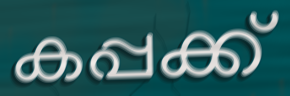
കപ്പക്ക്